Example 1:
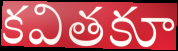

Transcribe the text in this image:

కవితకూ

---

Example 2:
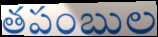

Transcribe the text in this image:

తపంబుల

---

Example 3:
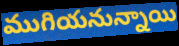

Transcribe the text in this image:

ముగియనున్నాయి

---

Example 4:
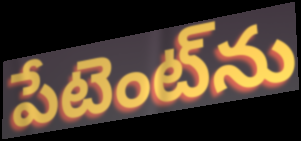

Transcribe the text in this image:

పేటెంట్‌ను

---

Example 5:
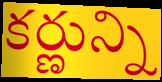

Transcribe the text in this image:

కర్ణున్ని